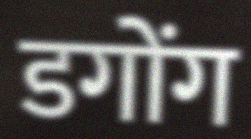
डगोंग